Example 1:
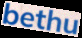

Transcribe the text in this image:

bethu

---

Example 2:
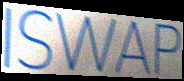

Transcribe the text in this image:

ISWAP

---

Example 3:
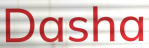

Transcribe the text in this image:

Dasha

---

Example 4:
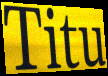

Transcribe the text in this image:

Titu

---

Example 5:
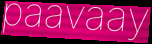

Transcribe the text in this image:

paavaay